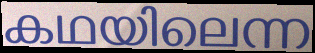
കഥയിലെന്ന